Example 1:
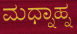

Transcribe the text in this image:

ಮಧ್ನಾಹ್ನ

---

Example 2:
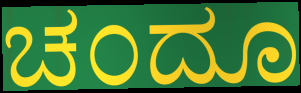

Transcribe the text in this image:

ಚಂದೂ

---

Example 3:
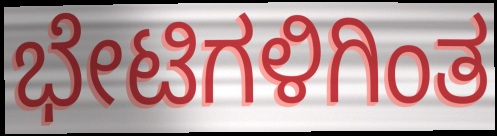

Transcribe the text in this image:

ಭೇಟಿಗಳಿಗಿಂತ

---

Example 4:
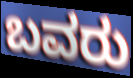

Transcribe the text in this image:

ಬವರು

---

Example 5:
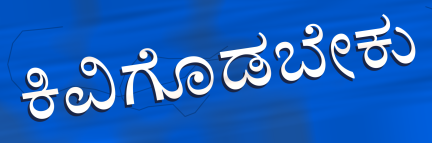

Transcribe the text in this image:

ಕಿವಿಗೊಡಬೇಕು